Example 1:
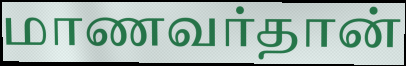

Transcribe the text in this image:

மாணவர்தான்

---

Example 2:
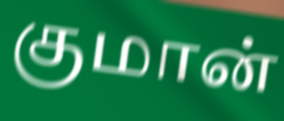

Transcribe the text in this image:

குமான்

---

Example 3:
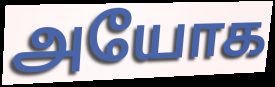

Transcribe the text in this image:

அயோக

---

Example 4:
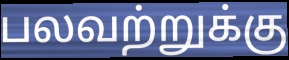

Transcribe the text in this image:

பலவற்றுக்கு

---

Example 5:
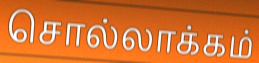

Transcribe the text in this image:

சொல்லாக்கம்